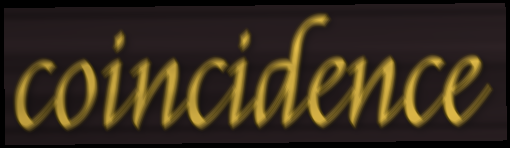
coincidence